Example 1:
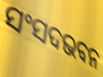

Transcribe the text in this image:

ସଂସଦଭବନ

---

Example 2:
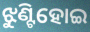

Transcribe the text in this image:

ଝୁଣ୍ଟିହୋଇ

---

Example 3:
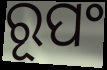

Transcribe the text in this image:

ରୂପଂ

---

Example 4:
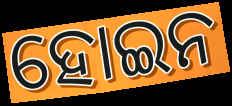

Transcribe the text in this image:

ହୋଇନ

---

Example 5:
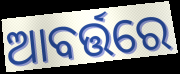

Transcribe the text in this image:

ଆବର୍ତ୍ତରେ